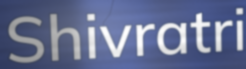
Shivratri